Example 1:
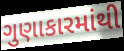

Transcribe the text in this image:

ગુણાકારમાંથી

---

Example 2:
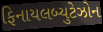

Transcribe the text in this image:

ફિનાયલબ્યુટેઝોન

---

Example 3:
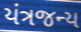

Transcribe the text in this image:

યંત્રજન્ય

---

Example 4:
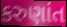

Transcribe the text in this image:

કરુણાંત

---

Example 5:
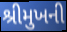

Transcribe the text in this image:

શ્રીમુખની